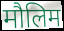
मौलिम